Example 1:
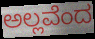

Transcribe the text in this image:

ಅಲ್ಲವೆಂದ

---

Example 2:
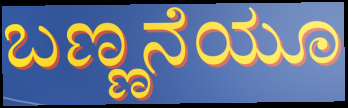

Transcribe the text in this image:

ಬಣ್ಣನೆಯೂ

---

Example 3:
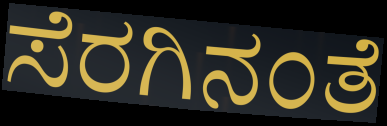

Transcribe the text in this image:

ಸೆರಗಿನಂತೆ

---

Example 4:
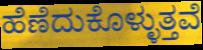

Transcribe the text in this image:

ಹೆಣೆದುಕೊಳ್ಳುತ್ತವೆ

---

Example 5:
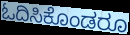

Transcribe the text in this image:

ಓದಿಸಿಕೊಂಡರೂ